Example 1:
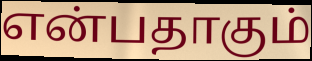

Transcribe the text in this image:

என்பதாகும்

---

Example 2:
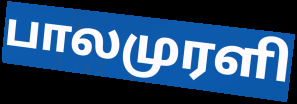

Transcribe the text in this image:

பாலமுரளி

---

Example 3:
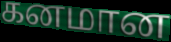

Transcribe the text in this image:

கனமான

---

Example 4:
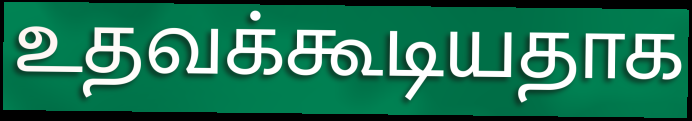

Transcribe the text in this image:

உதவக்கூடியதாக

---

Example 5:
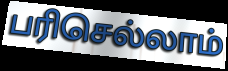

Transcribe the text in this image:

பரிசெல்லாம்